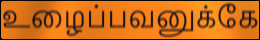
உழைப்பவனுக்கே